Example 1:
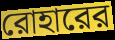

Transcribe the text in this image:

রোহারের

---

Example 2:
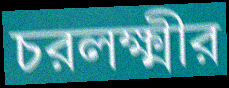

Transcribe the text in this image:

চরলক্ষ্মীর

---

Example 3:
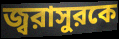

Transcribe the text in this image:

জ্বরাসুরকে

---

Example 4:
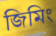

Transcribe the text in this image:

জিমিং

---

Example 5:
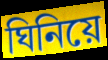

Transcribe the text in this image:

ঘিনিয়ে